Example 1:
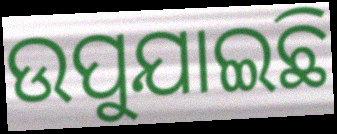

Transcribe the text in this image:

ଉପୁଯାଇଛି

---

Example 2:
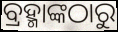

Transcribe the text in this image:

ବ୍ରହ୍ମାଙ୍କଠାରୁ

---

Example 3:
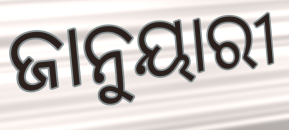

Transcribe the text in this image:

ଜାନୁୟାରୀ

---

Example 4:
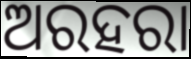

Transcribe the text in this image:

ଅରହରା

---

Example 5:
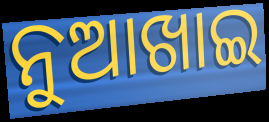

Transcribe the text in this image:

ନୁଆଖାଇ